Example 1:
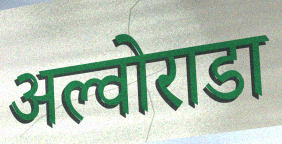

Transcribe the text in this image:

अल्वोराडा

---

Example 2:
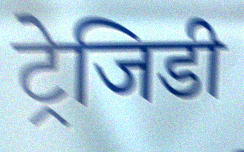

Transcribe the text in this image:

ट्रेजिडी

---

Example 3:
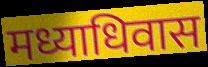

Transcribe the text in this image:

मध्याधिवास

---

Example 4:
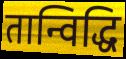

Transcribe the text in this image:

तान्विद्धि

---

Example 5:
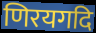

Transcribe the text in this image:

णिरयगदि